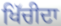
ਖਿੱਚੀਦਾ